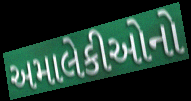
અમાલેકીઓનો